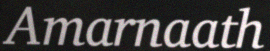
Amarnaath